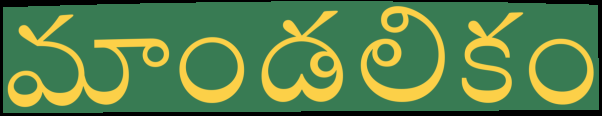
మాండలికం